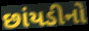
છાંયડીનો